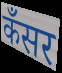
कँसर